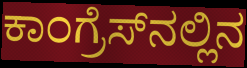
ಕಾಂಗ್ರೆಸ್‌ನಲ್ಲಿನ